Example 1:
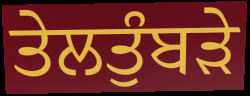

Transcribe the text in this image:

ਤੇਲਤੁੰਬੜੇ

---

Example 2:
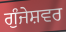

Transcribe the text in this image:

ਗੁੰਜੇਸ਼ਵਰ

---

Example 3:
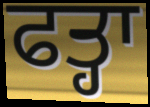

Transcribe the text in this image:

ਫਤ੍ਹਾ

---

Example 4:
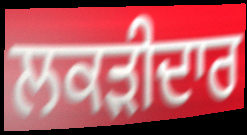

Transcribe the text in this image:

ਲਕੜੀਦਾਰ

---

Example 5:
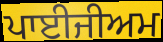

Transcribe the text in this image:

ਪਾਈਜੀਅਮ